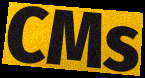
CMs